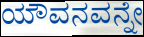
ಯೌವನವನ್ನೇ